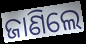
ଜାଣିଲେ